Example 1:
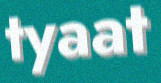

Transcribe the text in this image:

tyaat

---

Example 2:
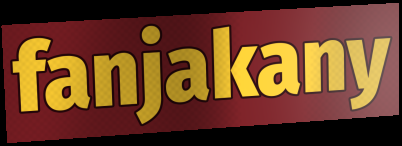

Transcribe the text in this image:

fanjakany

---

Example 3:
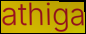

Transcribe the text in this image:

athiga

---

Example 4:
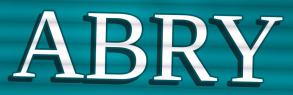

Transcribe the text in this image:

ABRY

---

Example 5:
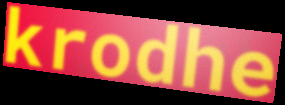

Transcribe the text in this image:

krodhe